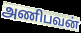
அணிபவன்